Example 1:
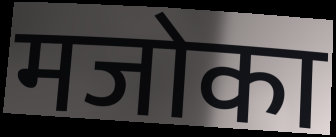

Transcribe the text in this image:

मजोका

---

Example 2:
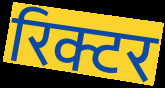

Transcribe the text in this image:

रिक्टर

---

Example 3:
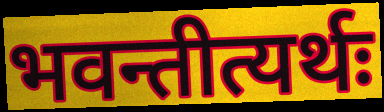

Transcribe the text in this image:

भवन्तीत्यर्थः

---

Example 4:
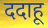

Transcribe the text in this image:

ददाहू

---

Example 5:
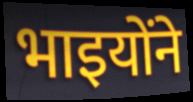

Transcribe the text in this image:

भाइयोंने